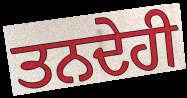
ਤਨਦੇਹੀ